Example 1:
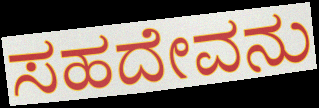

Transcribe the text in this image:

ಸಹದೇವನು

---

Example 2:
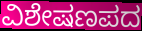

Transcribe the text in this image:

ವಿಶೇಷಣಪದ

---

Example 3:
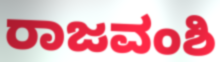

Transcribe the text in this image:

ರಾಜವಂಶಿ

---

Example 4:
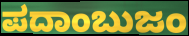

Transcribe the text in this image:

ಪದಾಂಬುಜಂ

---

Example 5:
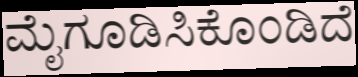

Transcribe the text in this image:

ಮೈಗೂಡಿಸಿಕೊಂಡಿದೆ